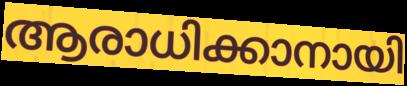
ആരാധിക്കാനായി